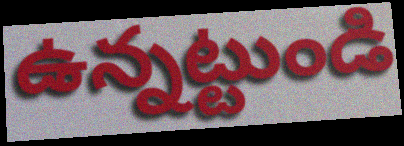
ఉన్నట్టుండి